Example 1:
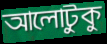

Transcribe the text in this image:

আলোটুকু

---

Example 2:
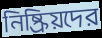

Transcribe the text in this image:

নিষ্ক্রিয়দের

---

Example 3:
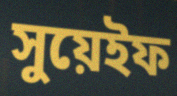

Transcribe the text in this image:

সুয়েইফ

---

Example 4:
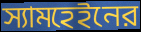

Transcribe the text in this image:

স্যামহেইনের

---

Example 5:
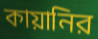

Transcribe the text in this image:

কায়ানির